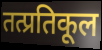
तत्प्रतिकूल